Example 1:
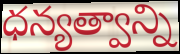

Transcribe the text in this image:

ధన్యత్వాన్ని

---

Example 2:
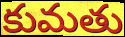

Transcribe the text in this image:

కుమతు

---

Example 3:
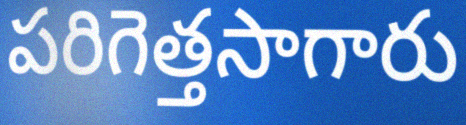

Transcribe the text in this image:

పరిగెత్తసాగారు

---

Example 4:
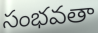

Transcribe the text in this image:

సంభవతా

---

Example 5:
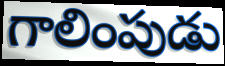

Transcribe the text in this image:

గాలింపుడు